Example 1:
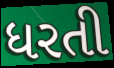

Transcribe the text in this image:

ધરતી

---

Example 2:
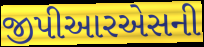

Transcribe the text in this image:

જીપીઆરએસની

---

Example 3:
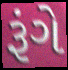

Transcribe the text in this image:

રૂંગે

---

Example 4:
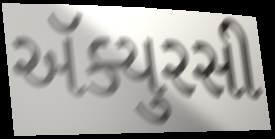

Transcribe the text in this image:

ઍક્યુરસી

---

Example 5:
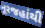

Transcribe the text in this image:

નૂરજહાંથી